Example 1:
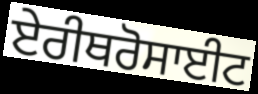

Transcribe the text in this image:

ਏਰੀਥਰੋਸਾਈਟ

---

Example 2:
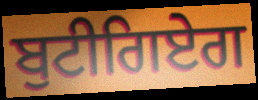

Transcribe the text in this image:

ਬੁਟੀਗਿਏਗ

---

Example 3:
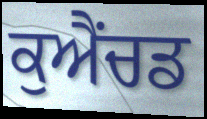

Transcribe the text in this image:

ਕੁਐਂਚਡ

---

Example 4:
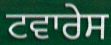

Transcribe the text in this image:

ਟਵਾਰੇਸ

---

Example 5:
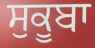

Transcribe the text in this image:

ਸੁਕੂਬਾ